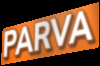
PARVA